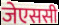
जेएससी